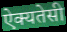
ऐक्यतेसी